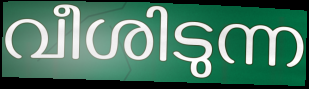
വീശിടുന്ന